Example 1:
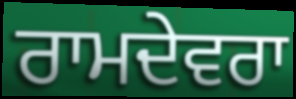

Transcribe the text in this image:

ਰਾਮਦੇਵਰਾ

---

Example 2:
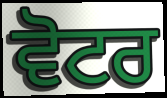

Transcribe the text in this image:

ਵੋਟਰ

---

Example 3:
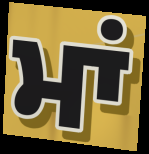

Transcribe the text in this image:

ਮਾਂ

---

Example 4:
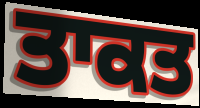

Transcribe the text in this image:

ਤਾਕਤ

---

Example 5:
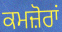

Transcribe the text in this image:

ਕਮਜ਼ੋਰਾਂ